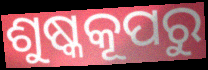
ଶୁଷ୍କକୂପରୁ